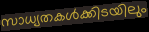
സാധ്യതകൾക്കിടയിലും